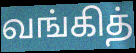
வங்கித்